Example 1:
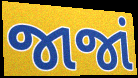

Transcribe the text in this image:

જાજાં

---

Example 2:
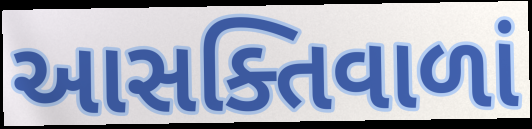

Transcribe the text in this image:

આસક્તિવાળાં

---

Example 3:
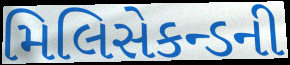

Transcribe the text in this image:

મિલિસેકન્ડની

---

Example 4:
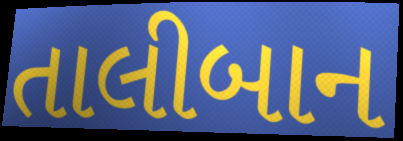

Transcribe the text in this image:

તાલીબાન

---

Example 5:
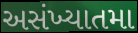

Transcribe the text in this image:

અસંખ્યાતમા